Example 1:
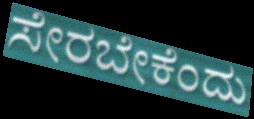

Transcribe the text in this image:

ಸೇರಬೇಕೆಂದು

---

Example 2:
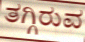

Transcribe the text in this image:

ತಗ್ಗಿರುವ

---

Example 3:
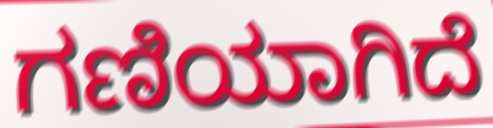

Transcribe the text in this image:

ಗಣಿಯಾಗಿದೆ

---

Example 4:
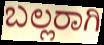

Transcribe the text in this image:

ಬಲ್ಲರಾಗಿ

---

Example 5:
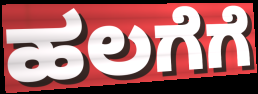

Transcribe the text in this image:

ಹಲಗೆಗೆ